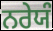
ਨਰੇਯੰ